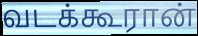
வடக்கூரான்